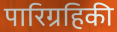
पारिग्रहिकी